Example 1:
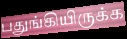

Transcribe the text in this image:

பதுங்கியிருக்க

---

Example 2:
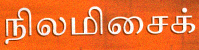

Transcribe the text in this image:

நிலமிசைக்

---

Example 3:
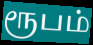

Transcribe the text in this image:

ரூபம்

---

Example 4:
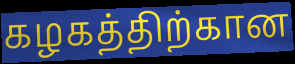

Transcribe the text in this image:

கழகத்திற்கான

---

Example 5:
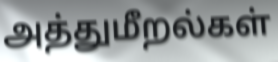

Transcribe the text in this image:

அத்துமீறல்கள்